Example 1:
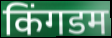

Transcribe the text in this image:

किंगडम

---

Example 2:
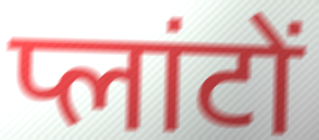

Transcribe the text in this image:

प्लांटों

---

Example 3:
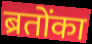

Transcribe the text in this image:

ब्रतोंका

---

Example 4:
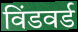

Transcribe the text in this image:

विंडवर्ड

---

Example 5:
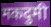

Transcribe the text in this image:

मकदुमी